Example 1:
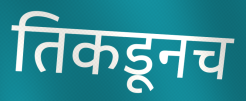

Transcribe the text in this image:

तिकडूनच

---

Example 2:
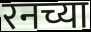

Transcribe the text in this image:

रनच्या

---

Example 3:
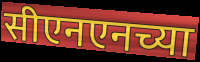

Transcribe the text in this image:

सीएनएनच्या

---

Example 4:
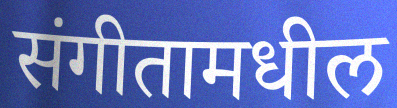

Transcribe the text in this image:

संगीतामधील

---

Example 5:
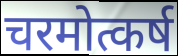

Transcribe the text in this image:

चरमोत्कर्ष